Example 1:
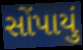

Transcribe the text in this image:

સોંપાયું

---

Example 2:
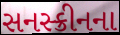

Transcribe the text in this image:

સનસ્ક્રીનના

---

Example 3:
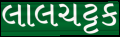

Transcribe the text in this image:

લાલચટ્ટક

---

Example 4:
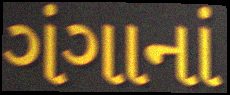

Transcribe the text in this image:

ગંગાનાં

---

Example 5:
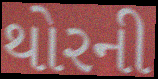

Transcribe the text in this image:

થોરની